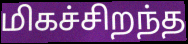
மிகச்சிறந்த